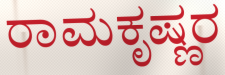
ರಾಮಕೃಷ್ಣರ